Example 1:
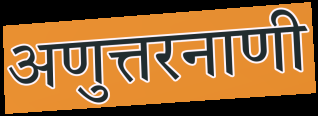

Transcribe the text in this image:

अणुत्तरनाणी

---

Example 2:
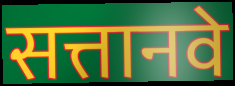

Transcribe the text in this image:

सत्तानवे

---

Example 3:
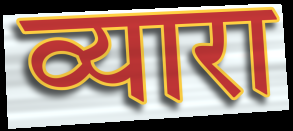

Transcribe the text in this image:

व्यारा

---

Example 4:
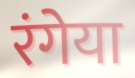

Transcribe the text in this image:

रंगेया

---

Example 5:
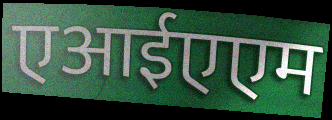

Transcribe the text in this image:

एआईएएम